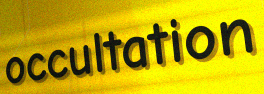
occultation